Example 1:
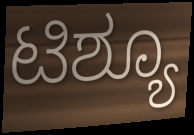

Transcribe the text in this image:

ಟಿಶ್ಯೂ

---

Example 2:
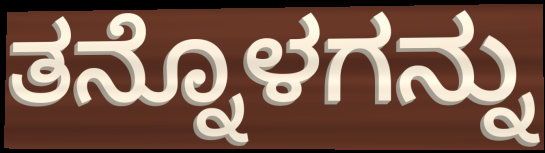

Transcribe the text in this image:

ತನ್ನೊಳಗನ್ನು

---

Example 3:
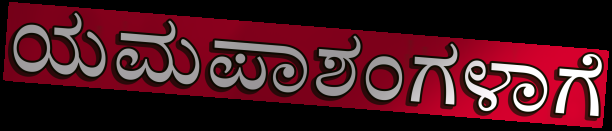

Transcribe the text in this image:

ಯಮಪಾಶಂಗಳಾಗೆ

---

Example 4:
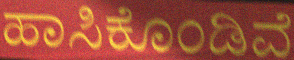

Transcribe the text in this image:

ಹಾಸಿಕೊಂಡಿವೆ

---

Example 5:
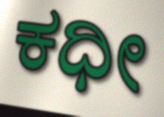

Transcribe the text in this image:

ಕಧೀ